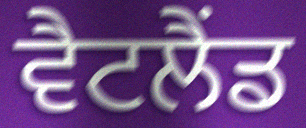
ਵੈਟਲੈਂਡ